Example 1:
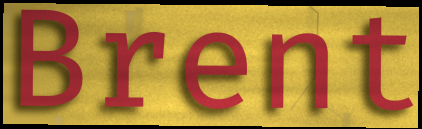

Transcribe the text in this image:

Brent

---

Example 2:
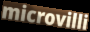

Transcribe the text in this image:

microvilli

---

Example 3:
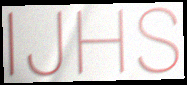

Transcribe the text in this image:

IJHS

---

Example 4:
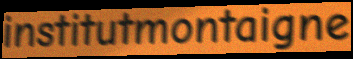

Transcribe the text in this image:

institutmontaigne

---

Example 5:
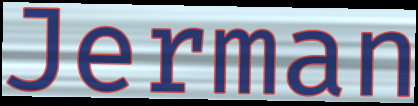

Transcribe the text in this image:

Jerman